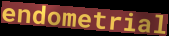
endometrial